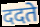
ददते